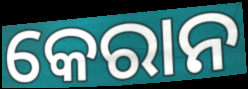
କେରାନ